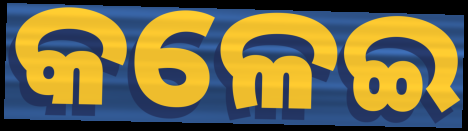
କଳେଇ